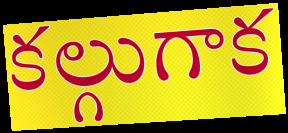
కల్గుగాక